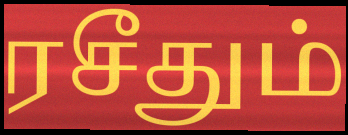
ரசீதும்